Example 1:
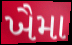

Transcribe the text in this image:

ખૈમા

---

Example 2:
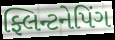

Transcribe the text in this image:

ફ્લિન્ટનેપિંગ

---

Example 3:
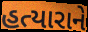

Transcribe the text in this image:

હત્યારાને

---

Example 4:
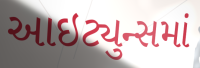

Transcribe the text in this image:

આઇટ્યુન્સમાં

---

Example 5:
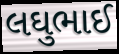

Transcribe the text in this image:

લઘુભાઈ